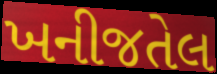
ખનીજતેલ